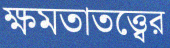
ক্ষমতাতত্ত্বের